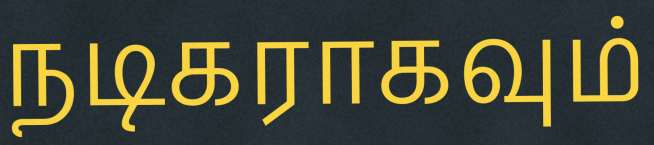
நடிகராகவும்